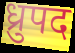
ध्रुपद